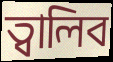
ত্বালিব